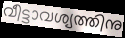
വീട്ടാവശ്യത്തിനു